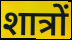
शात्रों